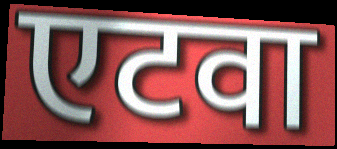
एटवा